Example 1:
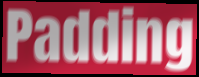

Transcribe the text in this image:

Padding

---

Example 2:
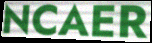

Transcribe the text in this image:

NCAER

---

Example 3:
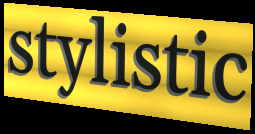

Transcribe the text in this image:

stylistic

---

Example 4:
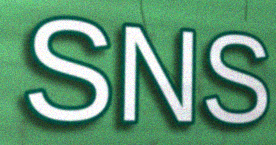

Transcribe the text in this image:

SNS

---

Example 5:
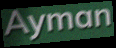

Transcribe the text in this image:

Ayman